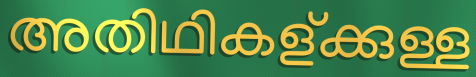
അതിഥികള്ക്കുള്ള